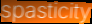
spasticity